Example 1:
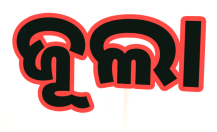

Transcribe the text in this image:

ଜୂଲା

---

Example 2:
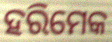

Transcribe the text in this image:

ହରିମେକ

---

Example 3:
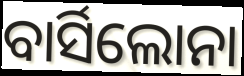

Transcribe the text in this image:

ବାର୍ସିଲୋନା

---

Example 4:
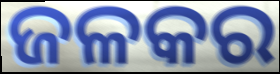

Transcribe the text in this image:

ଜଳକର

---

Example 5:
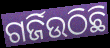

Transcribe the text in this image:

ଗର୍ଜିଉଠିଛି